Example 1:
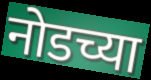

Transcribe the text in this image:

नोडच्या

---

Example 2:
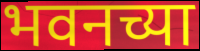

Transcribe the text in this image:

भवनच्या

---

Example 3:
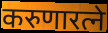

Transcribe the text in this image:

करुणारत्ने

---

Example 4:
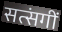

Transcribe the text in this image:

सत्संगीं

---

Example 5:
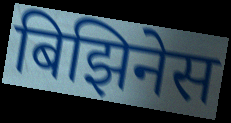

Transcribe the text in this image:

बिझिनेस